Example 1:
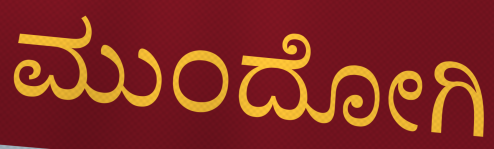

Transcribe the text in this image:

ಮುಂದೋಗಿ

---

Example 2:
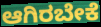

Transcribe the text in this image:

ಆಗಿರಬೇಕೆ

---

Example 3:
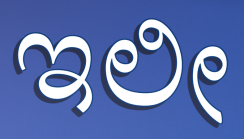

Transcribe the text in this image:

ಇಲೀ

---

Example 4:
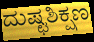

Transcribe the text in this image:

ದುಷ್ಟಶಿಕ್ಷಣ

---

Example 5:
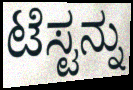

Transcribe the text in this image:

ಟೆಸ್ಟನ್ನು